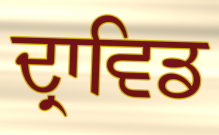
ਦ੍ਰਾਵਿਡ